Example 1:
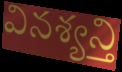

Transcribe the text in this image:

వినశ్యన్తి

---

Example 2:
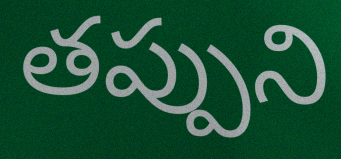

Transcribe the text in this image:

తప్పుని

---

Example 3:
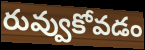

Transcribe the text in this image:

రువ్వుకోవడం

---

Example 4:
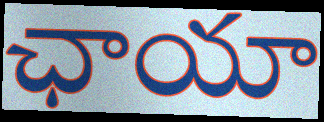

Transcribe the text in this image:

ఛాయా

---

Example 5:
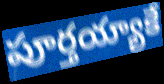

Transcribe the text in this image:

పూర్తయ్యాకే